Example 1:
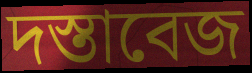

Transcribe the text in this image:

দস্তাবেজ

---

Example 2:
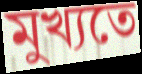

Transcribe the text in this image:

মুখ্যতে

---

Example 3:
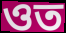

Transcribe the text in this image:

ওত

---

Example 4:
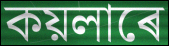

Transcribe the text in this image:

কয়লাৰে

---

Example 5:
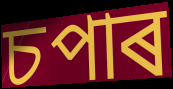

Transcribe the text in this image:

চপাৰ